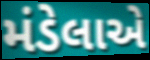
મંડેલાએ